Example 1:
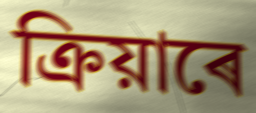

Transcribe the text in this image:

ক্ৰিয়াৰে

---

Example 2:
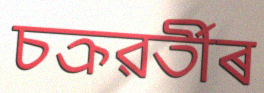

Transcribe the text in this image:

চক্ৰৱৰ্তীৰ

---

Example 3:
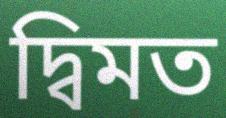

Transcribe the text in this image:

দ্বিমত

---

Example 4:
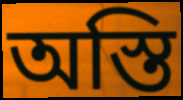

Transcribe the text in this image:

অস্তি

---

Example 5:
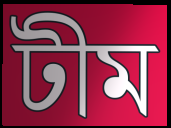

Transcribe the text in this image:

টীম